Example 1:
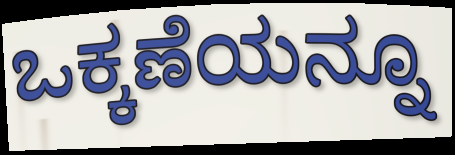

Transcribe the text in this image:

ಒಕ್ಕಣೆಯನ್ನೂ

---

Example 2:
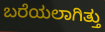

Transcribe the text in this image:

ಬರೆಯಲಾಗಿತ್ತು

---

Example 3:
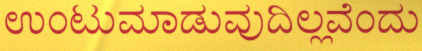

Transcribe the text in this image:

ಉಂಟುಮಾಡುವುದಿಲ್ಲವೆಂದು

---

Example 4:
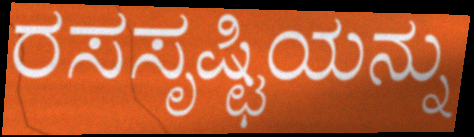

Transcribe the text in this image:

ರಸಸೃಷ್ಟಿಯನ್ನು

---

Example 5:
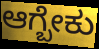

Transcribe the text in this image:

ಆಗ್ಬೇಕು